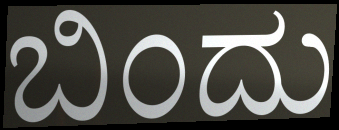
ಬಿಂದು